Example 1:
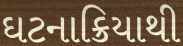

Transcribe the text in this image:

ઘટનાક્રિયાથી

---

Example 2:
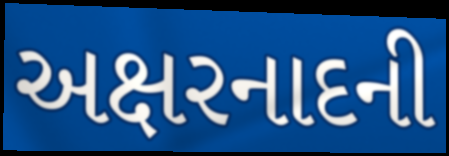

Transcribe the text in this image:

અક્ષરનાદની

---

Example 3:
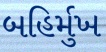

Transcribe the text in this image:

બહિર્મુખ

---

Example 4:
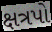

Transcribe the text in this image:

ક્ષત્રપો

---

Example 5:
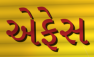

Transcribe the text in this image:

એફેસ